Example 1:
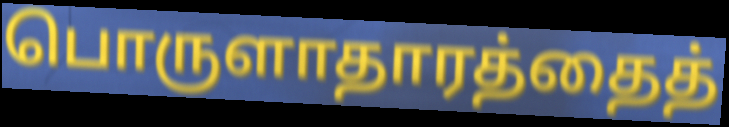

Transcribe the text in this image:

பொருளாதாரத்தைத்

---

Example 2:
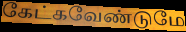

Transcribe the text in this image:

கேட்கவேண்டுமே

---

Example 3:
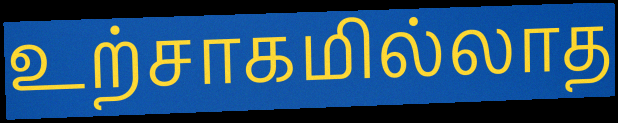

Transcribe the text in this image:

உற்சாகமில்லாத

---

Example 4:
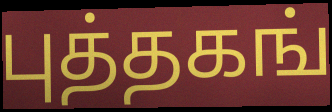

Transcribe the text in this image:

புத்தகங்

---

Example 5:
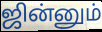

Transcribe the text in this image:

ஜின்னும்